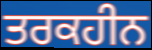
ਤਰਕਹੀਨ